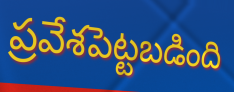
ప్రవేశపెట్టబడింది